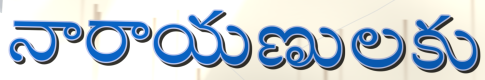
నారాయణులకు